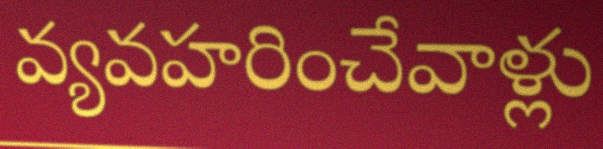
వ్యవహరించేవాళ్లు